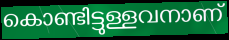
കൊണ്ടിട്ടുള്ളവനാണ്